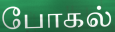
போகல்